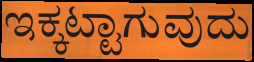
ಇಕ್ಕಟ್ಟಾಗುವುದು